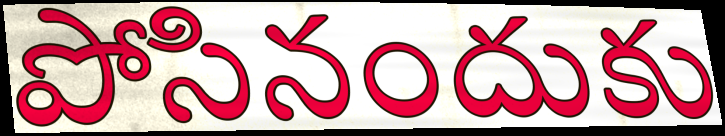
పోసినందుకు